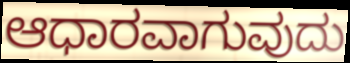
ಆಧಾರವಾಗುವುದು